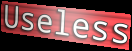
Useless